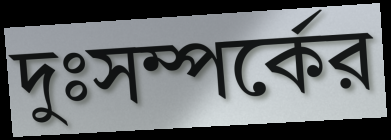
দুঃসম্পর্কের